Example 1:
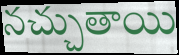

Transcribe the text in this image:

నచ్చుతాయి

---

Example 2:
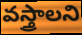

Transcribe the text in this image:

వస్త్రాలని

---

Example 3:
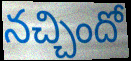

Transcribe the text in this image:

నచ్చిందో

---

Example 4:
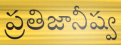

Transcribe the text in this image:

ప్రతిజానీష్వ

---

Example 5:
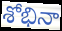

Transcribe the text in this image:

శోభినా